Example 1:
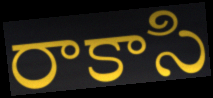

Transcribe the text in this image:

రాకాసి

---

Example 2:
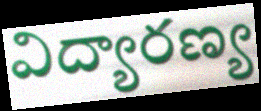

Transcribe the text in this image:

విద్యారణ్య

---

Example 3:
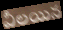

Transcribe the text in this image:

వీలయిన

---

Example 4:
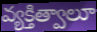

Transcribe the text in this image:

వ్యక్తిత్వాలూ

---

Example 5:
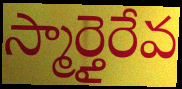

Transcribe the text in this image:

స్మార్తైరేవ